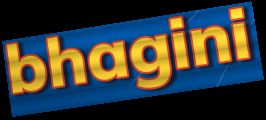
bhagini